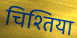
चिश्तिया